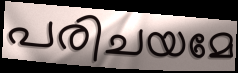
പരിചയമേ